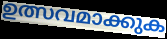
ഉത്സവമാക്കുക